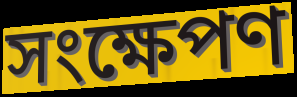
সংক্ষেপণ